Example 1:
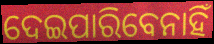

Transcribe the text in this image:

ଦେଇପାରିବେନାହିଁ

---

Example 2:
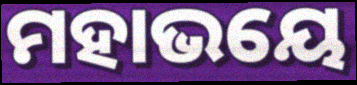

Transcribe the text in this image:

ମହାଭୟେ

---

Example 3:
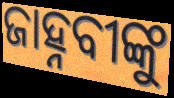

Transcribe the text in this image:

ଜାହ୍ନବୀଙ୍କୁ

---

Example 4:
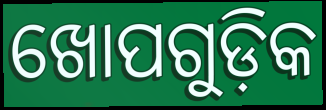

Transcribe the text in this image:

ଖୋପଗୁଡ଼ିକ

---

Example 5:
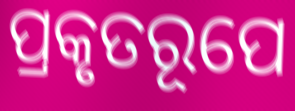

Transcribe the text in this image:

ପ୍ରକୃତରୂପେ